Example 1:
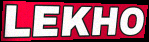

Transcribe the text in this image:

LEKHO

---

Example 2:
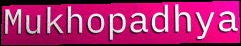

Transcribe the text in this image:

Mukhopadhya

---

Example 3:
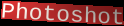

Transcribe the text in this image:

Photoshot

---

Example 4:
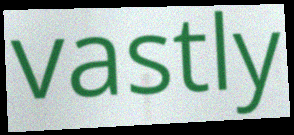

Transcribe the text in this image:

vastly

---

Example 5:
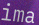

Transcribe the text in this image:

ima